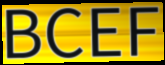
BCEF